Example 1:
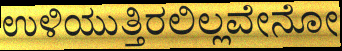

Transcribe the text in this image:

ಉಳಿಯುತ್ತಿರಲಿಲ್ಲವೇನೋ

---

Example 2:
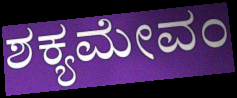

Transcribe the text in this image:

ಶಕ್ಯಮೇವಂ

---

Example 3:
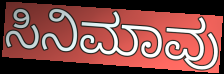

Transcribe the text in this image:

ಸಿನಿಮಾವು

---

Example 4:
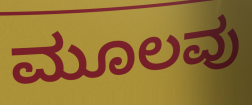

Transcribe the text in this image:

ಮೂಲವು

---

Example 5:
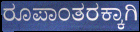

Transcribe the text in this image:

ರೂಪಾಂತರಕ್ಕಾಗಿ